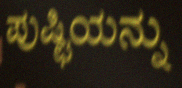
ಪುಷ್ಟಿಯನ್ನು